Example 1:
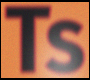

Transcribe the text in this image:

Ts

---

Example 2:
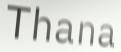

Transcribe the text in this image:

Thana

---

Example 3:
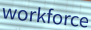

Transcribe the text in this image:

workforce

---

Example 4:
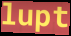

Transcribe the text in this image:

lupt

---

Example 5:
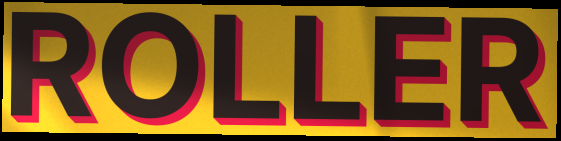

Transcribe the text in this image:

ROLLER